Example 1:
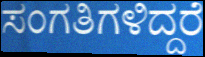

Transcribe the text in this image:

ಸಂಗತಿಗಳಿದ್ದರೆ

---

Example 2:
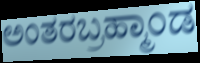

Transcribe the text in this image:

ಅಂತರಬ್ರಹ್ಮಾಂಡ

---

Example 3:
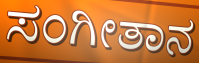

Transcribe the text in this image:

ಸಂಗೀತಾನ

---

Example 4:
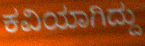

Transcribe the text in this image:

ಕವಿಯಾಗಿದ್ದು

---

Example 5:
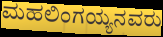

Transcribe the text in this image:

ಮಹಲಿಂಗಯ್ಯನವರು